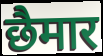
छैमार